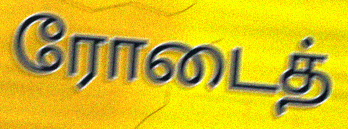
ரோடைத்